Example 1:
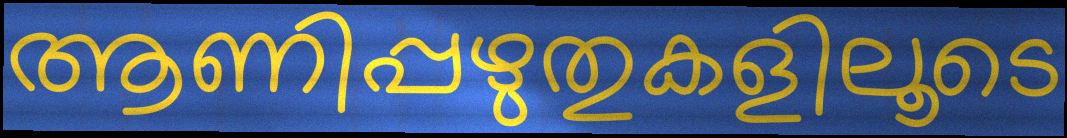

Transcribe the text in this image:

ആണിപ്പഴുതുകളിലൂടെ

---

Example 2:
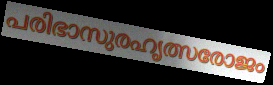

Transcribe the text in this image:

പരിഭാസുരഹൃത്സരോജം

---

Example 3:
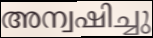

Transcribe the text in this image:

അന്വഷിച്ചു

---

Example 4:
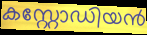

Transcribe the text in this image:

കസ്റ്റോഡിയൻ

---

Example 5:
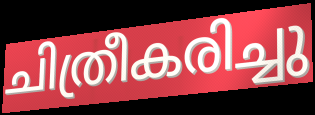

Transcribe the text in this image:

ചിത്രീകരിച്ചു